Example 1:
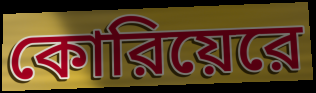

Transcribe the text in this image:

কোরিয়েরে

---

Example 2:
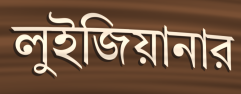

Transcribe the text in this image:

লুইজিয়ানার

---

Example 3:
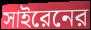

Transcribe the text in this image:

সাইরেনের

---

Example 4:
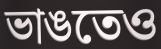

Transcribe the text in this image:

ভাঙতেও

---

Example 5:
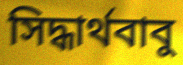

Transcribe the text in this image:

সিদ্ধার্থবাবু